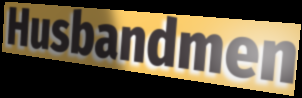
Husbandmen